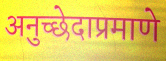
अनुच्छेदाप्रमाणे